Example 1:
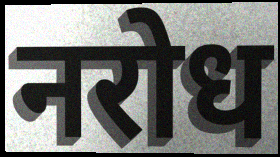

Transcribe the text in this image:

नरोध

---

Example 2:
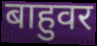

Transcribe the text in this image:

बाहुवर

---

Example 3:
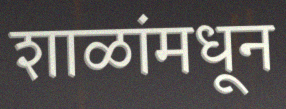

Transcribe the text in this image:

शाळांमधून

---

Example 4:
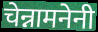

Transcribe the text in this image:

चेन्नामनेनी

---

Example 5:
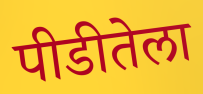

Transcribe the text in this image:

पीडीतेला